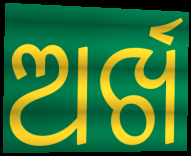
ଅର୍ଖ